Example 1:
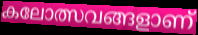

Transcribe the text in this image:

കലോത്സവങ്ങളാണ്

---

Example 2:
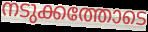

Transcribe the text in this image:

നടുക്കത്തോടെ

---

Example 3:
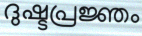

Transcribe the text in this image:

ദുഷ്ടപ്രജ്ഞം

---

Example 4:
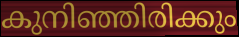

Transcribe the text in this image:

കുനിഞ്ഞിരിക്കും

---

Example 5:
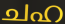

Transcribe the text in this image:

ചഹ